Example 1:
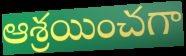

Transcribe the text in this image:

ఆశ్రయించగా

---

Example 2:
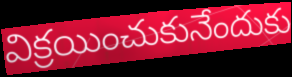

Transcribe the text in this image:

విక్రయించుకునేందుకు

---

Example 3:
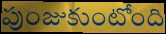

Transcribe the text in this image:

పుంజుకుంటోంది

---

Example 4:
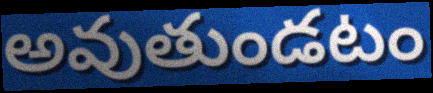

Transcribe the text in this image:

అవుతుండటం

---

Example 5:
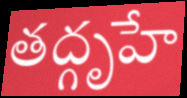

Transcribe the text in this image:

తద్గృహే